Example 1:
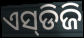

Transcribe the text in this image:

ଏସ୍‌ଡିଜି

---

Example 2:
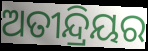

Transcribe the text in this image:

ଅତୀନ୍ଦ୍ରିୟର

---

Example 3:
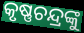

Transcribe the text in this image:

କୃଷ୍ଣଚନ୍ଦ୍ରଙ୍କୁ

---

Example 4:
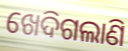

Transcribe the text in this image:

ଖେଦିଗଲାଣି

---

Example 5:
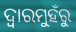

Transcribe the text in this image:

ଦ୍ଵାରମୁହଁରୁ